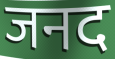
जनद